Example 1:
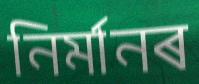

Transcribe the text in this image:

নিৰ্মানৰ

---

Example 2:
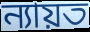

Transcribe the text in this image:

ন্যায়ত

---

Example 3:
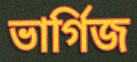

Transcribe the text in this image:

ভাৰ্গিজ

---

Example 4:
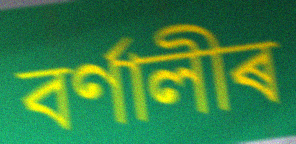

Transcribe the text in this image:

বৰ্ণালীৰ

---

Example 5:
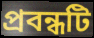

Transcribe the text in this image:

প্ৰবন্ধটি